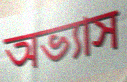
অভ্যাস